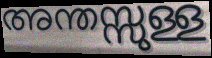
അന്തസ്സുള്ള